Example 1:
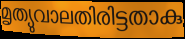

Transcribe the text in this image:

മൃത്യുവാലതിരിട്ടതാകു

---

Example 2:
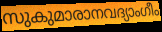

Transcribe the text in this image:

സുകുമാരാനവദ്യാംഗീം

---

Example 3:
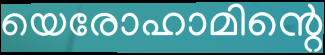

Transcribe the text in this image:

യെരോഹാമിന്റെ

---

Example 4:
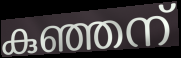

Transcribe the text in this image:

കുഞ്ഞന്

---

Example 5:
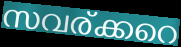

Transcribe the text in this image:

സവര്ക്കറെ